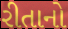
રીતાનો